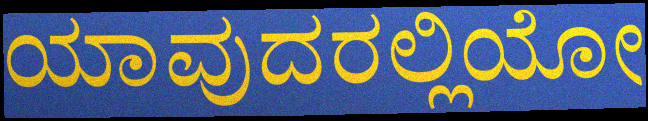
ಯಾವುದರಲ್ಲಿಯೋ